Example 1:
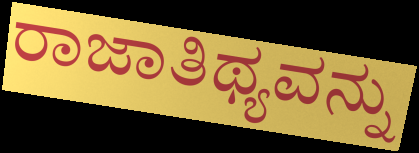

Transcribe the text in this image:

ರಾಜಾತಿಥ್ಯವನ್ನು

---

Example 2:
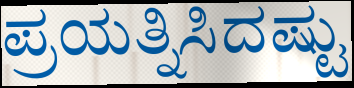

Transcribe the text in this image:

ಪ್ರಯತ್ನಿಸಿದಷ್ಟು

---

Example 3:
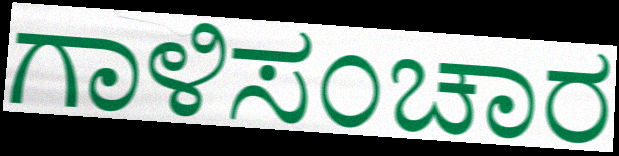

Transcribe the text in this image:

ಗಾಳಿಸಂಚಾರ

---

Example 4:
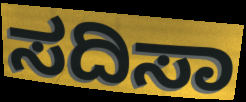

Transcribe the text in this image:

ಸದಿಸಾ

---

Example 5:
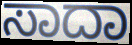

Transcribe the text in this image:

ಸಾದಾ